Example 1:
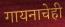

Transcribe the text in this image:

गायनाचेही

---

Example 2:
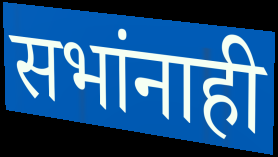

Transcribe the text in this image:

सभांनाही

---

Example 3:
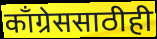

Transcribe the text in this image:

काँग्रेससाठीही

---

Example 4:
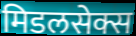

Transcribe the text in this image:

मिडलसेक्स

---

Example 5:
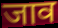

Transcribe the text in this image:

जाव